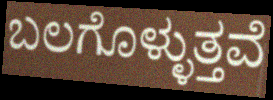
ಬಲಗೊಳ್ಳುತ್ತವೆ